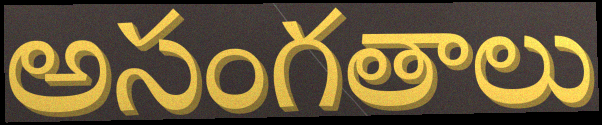
అసంగతాలు